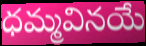
ధమ్మవినయే